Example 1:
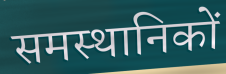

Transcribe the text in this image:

समस्थानिकों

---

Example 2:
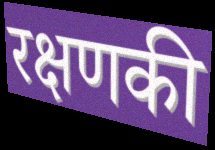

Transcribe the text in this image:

रक्षणकी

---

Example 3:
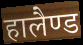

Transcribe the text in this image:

हालैण्ड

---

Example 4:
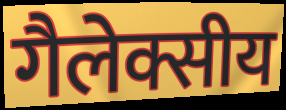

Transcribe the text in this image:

गैलेक्सीय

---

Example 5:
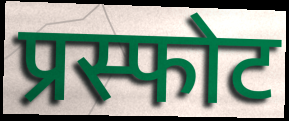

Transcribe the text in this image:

प्रस्फोट